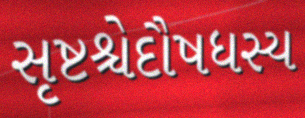
સૃષ્ટશ્ચેદૌષધસ્ય